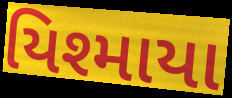
યિશ્માયા